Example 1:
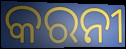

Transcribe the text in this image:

କରନୀ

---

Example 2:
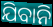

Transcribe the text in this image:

ଯିବାନି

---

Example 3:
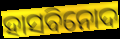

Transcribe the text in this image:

ହାସବିନୋଦ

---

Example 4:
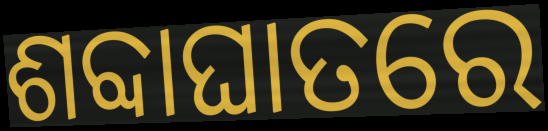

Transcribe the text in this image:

ଶବ୍ଦାଘାତରେ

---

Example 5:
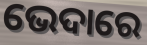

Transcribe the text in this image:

ଭେଦାରେ